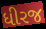
ધીરજ